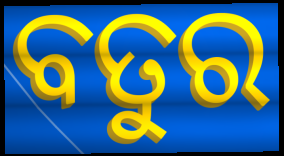
ବତୁର